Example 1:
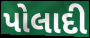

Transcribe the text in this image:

પોલાદી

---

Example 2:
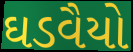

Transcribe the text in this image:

ઘડવૈયો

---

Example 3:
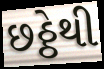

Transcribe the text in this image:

છઠ્ઠેથી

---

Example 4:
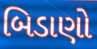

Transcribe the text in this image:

બિડાણો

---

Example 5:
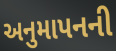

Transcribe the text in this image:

અનુમાપનની